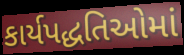
કાર્યપદ્ધતિઓમાં